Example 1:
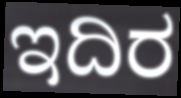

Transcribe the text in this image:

ಇದಿರ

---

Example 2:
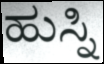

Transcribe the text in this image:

ಹುಸ್ನಿ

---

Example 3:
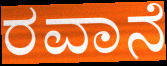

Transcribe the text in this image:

ರವಾನೆ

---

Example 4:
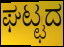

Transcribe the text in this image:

ಘಟ್ಟದ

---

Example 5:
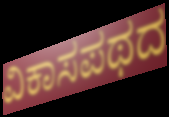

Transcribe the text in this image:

ವಿಕಾಸಪಥದ